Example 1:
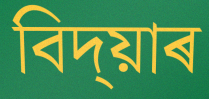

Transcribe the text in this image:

বিদ্য়াৰ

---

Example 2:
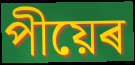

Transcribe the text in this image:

পীয়েৰ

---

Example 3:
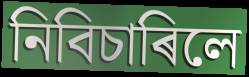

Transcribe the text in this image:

নিবিচাৰিলে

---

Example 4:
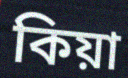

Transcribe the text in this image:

কিয়া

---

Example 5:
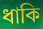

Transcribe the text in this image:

ধাকি